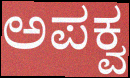
ಅಪಕ್ವ